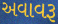
અવાવરૂ